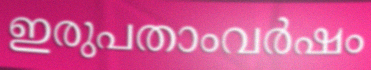
ഇരുപതാംവർഷം